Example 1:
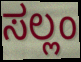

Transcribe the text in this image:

ಸಲ್ಲಂ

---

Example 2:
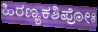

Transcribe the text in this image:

ಹಿರಣ್ಯಕಶಿಪೋಃ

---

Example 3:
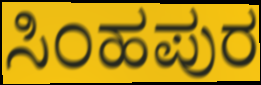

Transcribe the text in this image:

ಸಿಂಹಪುರ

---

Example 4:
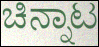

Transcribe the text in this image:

ಚಿನ್ನಾಟ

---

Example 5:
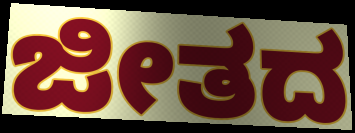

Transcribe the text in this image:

ಜೀತದ